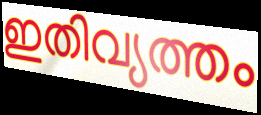
ഇതിവ്യത്തം